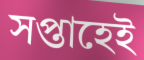
সপ্তাহেই